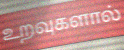
உறவுகளால்